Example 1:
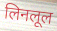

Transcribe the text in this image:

लिनलूल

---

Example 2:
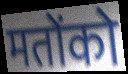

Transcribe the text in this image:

मतोंको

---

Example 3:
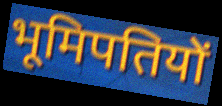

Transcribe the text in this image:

भूमिपतियों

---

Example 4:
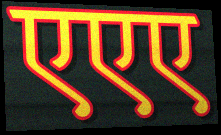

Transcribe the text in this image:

एएए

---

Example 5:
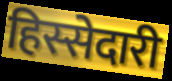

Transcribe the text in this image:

हिस्‍सेदारी